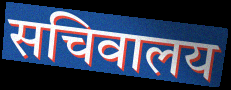
सचिवालय